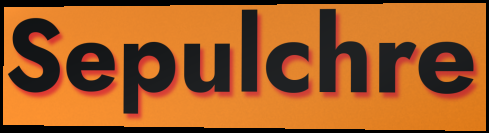
Sepulchre